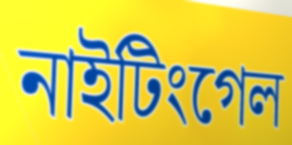
নাইটিংগেল